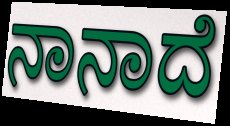
ನಾನಾದೆ